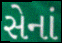
સેનાં